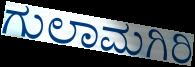
ಗುಲಾಮಗಿರಿ